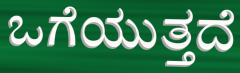
ಒಗೆಯುತ್ತದೆ